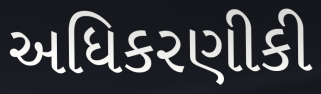
અધિકરણીકી